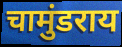
चामुंडराय